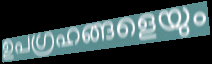
ഉപഗ്രഹങ്ങളെയും